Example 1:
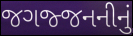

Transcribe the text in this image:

જગજ્જનનીનું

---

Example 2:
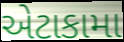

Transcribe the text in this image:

એટાકામા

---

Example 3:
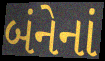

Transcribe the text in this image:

બંનેનાં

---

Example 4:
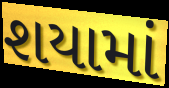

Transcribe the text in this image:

શયામાં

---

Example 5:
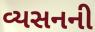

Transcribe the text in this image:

વ્યસનની